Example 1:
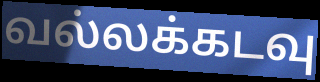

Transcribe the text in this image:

வல்லக்கடவு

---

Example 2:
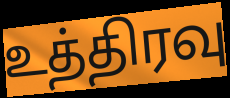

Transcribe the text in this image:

உத்திரவு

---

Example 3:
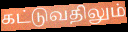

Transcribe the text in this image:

கட்டுவதிலும்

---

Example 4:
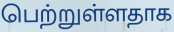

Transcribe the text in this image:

பெற்றுள்ளதாக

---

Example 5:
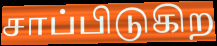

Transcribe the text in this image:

சாப்பிடுகிற